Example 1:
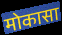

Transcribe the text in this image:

मोकासा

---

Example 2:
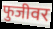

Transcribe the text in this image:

फुजीवर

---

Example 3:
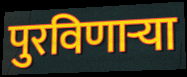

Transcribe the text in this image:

पुरविणाऱ्या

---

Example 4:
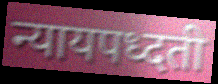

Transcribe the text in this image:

न्यायपध्दती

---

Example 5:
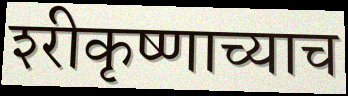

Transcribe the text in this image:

श्रीकृष्णाच्याच